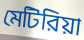
মেটিরিয়া